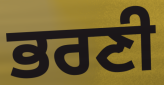
ਭਰਣੀ